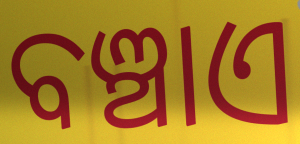
ବଞ୍ଚାଏ